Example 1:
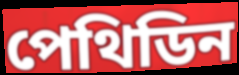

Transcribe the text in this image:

পেথিডিন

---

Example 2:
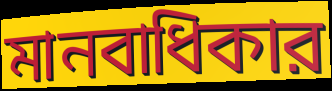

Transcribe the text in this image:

মানবাধিকার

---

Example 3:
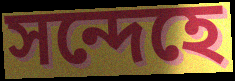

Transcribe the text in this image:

সন্দেহে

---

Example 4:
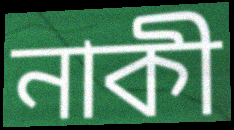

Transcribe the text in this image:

নাকী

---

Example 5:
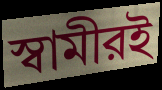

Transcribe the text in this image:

স্বামীরই